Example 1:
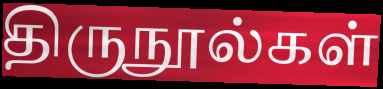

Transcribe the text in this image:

திருநூல்கள்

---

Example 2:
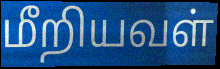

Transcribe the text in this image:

மீறியவள்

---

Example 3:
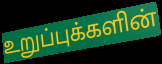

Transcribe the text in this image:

உறுப்புக்களின்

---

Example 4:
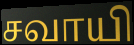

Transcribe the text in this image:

சவாயி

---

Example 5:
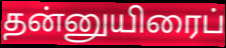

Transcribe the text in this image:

தன்னுயிரைப்